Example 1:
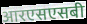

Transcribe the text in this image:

आरएसएसबी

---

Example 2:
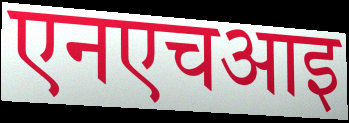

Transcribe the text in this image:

एनएचआइ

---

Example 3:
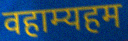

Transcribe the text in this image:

वहाम्यहम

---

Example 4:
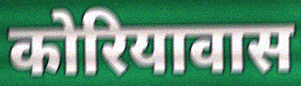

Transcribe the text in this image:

कोरियावास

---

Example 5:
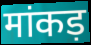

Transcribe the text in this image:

मांकड़